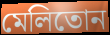
মেলিতোন